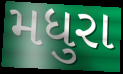
મધુરા